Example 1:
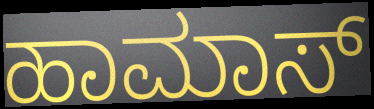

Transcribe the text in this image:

ಹಾಮಾಸ್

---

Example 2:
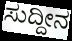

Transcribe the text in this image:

ಸುದ್ದೀನ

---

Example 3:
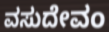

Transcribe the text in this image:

ವಸುದೇವಂ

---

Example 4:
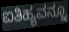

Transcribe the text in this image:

ಐತಿಹ್ಯವನ್ನೂ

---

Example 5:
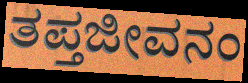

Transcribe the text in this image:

ತಪ್ತಜೀವನಂ